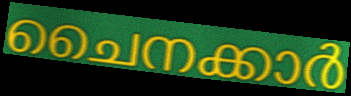
ചൈനക്കാർ